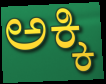
ಅಕ್ಕಿ